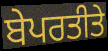
ਬੇਪਰਤੀਤੇ